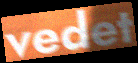
vedet